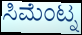
ಸಿಮೆಂಟ್ನ